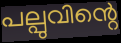
പല്പുവിന്റെ